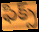
ఫిక్స్